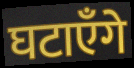
घटाएँगे